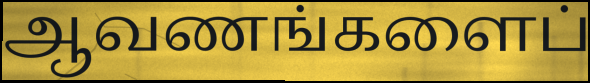
ஆவணங்களைப்